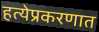
हत्येप्रकरणात